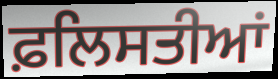
ਫ਼ਲਿਸਤੀਆਂ